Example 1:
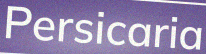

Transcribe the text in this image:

Persicaria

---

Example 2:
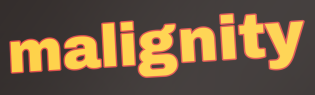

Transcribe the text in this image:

malignity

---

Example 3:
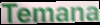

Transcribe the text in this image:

Temana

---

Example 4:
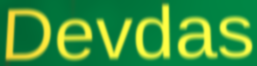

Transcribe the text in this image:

Devdas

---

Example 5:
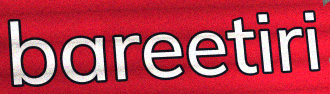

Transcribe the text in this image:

bareetiri